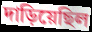
দাড়িয়েছিল